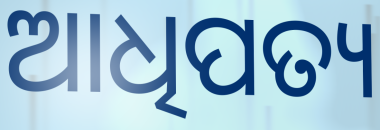
ଆଧିପତ୍ୟ